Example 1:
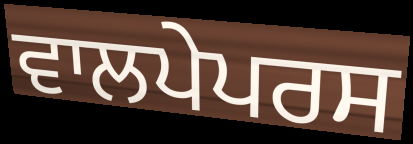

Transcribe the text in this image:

ਵਾਲਪੇਪਰਸ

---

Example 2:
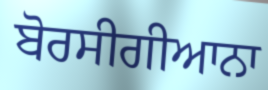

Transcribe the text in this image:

ਬੋਰਸੀਗੀਆਨਾ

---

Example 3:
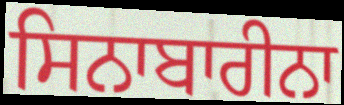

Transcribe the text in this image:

ਸਿਨਾਬਾਰੀਨਾ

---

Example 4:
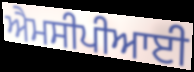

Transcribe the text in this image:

ਐਮਸੀਪੀਆਈ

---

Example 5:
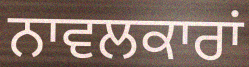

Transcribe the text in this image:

ਨਾਵਲਕਾਰਾਂ